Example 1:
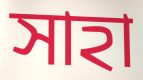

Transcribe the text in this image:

সাহা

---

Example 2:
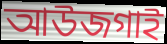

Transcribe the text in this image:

আউজগাই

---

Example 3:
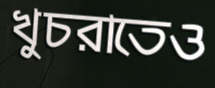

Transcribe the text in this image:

খুচরাতেও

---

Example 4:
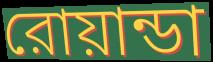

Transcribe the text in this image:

রোয়ান্ডা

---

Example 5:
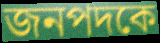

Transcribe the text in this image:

জনপদকে